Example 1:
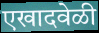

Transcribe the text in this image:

एखादवेळी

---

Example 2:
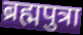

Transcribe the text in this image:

ब्रह्मपुत्रा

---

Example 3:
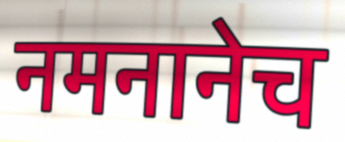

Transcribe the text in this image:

नमनानेच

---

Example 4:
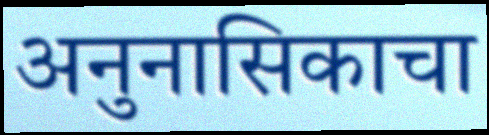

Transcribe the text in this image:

अनुनासिकाचा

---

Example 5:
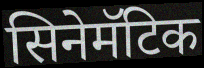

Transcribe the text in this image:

सिनेमॅटिक